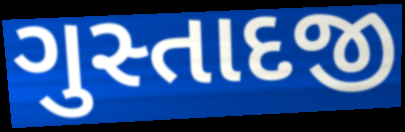
ગુસ્તાદજી